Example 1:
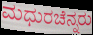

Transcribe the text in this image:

ಮಧುರಚೆನ್ನರು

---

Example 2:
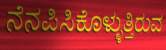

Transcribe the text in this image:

ನೆನಪಿಸಿಕೊಳ್ಳುತ್ತಿರುವ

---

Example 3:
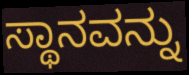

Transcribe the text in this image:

ಸ್ಥಾನವನ್ನು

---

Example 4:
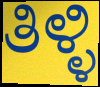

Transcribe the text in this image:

ತಿಳ್ಳಿ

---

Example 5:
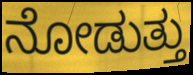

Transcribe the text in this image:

ನೋಡುತ್ತು